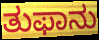
ತುಫಾನು